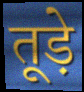
तूड़े